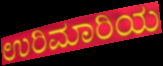
ಉರಿಮಾರಿಯ